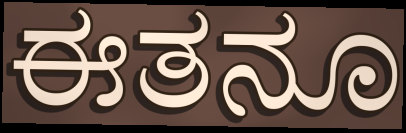
ಈತನೂ